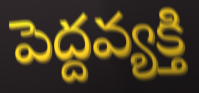
పెద్దవ్యక్తి